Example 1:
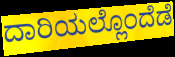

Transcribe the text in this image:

ದಾರಿಯಲ್ಲೊಂದೆಡೆ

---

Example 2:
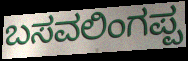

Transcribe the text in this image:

ಬಸವಲಿಂಗಪ್ಪ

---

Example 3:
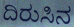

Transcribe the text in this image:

ದಿರುಸಿನ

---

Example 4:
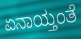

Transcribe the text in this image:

ಏನಾಯ್ತಂತೆ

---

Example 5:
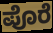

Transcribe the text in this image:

ಪೊರೆ